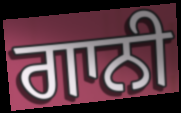
ਗਾਨੀ